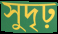
সুদৃঢ়